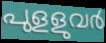
പുളളുവർ